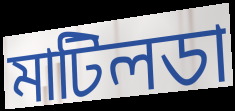
মাটিলডা